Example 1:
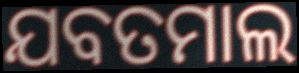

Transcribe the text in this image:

ଯବତମାଲ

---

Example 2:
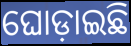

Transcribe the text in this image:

ଘୋଡ଼ାଇଛି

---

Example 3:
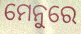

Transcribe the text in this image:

ମେନୁରେ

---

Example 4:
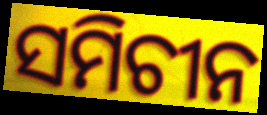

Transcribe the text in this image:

ସମିଚୀନ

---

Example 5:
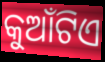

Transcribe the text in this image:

କୁଆଁଟିଏ